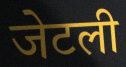
जेटली